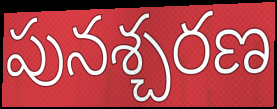
పునశ్చరణ